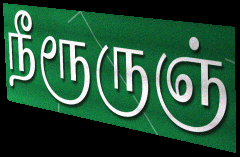
நீரூருஞ்